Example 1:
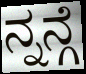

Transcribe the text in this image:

ನ್ನನ್ಗೆ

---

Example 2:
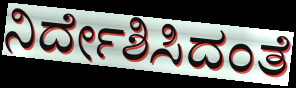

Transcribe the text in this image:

ನಿರ್ದೇಶಿಸಿದಂತೆ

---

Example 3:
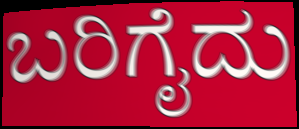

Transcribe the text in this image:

ಬರಿಗೈದು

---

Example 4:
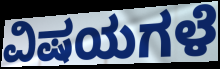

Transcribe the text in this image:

ವಿಷಯಗಳೆ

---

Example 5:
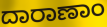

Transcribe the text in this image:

ದಾರಾಣಾಂ